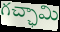
గచ్ఛామి